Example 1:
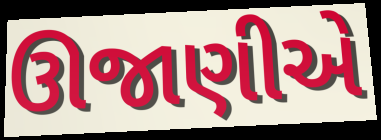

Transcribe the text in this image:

ઊજાણીએ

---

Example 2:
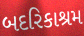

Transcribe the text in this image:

બદરિકાશ્રમ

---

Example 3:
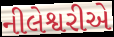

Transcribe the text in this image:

નીલેશ્વરીએ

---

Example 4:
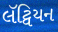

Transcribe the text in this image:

લૅટ્વિયન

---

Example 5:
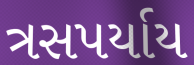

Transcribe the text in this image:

ત્રસપર્યાય